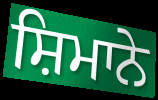
ਸ਼ਿਮਾਨੇ